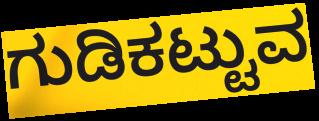
ಗುಡಿಕಟ್ಟುವ